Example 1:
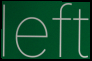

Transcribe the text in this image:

left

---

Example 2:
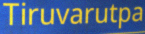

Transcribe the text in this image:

Tiruvarutpa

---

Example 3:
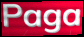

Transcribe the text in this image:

Paga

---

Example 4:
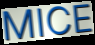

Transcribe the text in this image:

MICE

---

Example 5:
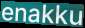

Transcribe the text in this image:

enakku